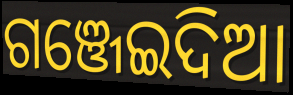
ଗଞ୍ଜେଇଦିଆ